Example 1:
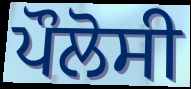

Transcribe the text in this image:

ਪੌਲੋਸੀ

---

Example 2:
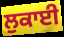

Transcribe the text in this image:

ਲੁਕਾਈ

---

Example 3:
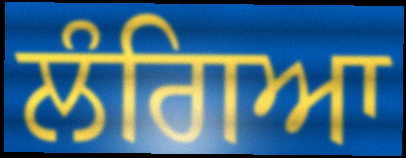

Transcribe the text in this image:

ਲੰਗਿਆ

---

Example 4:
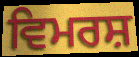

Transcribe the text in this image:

ਵਿਮਰਸ਼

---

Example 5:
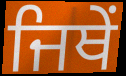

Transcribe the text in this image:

ਜਿਥੇਂ